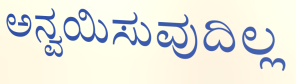
ಅನ್ವಯಿಸುವುದಿಲ್ಲ